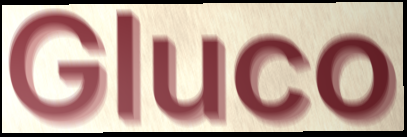
Gluco